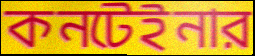
কনটেইনার